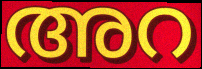
അറ